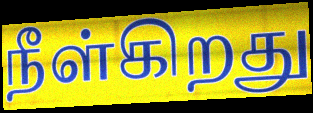
நீள்கிறது